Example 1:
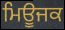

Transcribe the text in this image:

ਮਿਊਜਕ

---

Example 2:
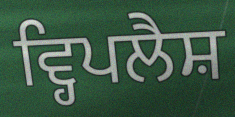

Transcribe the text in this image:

ਵ੍ਹਿਪਲੈਸ਼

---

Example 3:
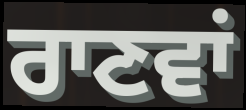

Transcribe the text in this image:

ਰਾਣਵਾਂ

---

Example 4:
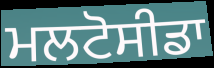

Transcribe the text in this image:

ਮਲਟੋਸੀਡਾ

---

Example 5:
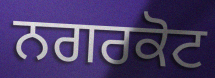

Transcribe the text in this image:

ਨਗਰਕੋਟ